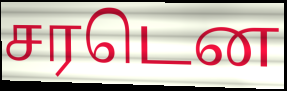
சரடென